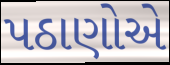
પઠાણોએ